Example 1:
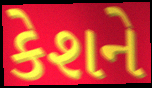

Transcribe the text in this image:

કેશને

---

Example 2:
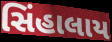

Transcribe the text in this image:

સિંહાલાય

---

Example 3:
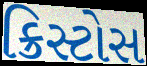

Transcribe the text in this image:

ક્રિસ્ટોસ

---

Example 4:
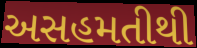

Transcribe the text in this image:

અસહમતીથી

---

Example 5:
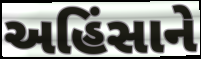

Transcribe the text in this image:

અહિંસાને